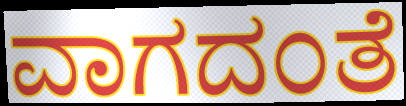
ವಾಗದಂತೆ